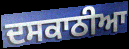
ਦਸਕਾਠੀਆ